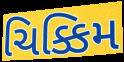
ચિક્કિમ